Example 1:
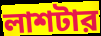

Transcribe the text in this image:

লাশটার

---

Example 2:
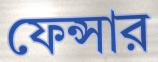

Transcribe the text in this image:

ফেন্সার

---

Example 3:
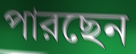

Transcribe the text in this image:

পারছেন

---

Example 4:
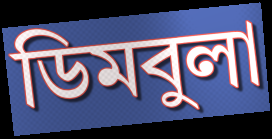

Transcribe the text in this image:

ডিমবুলা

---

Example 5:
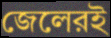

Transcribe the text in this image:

জেলেরই